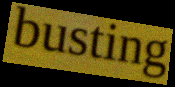
busting